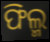
ଫିଲ୍ମ